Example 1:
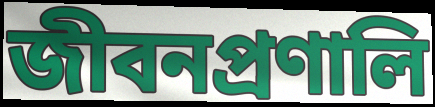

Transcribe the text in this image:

জীবনপ্রণালি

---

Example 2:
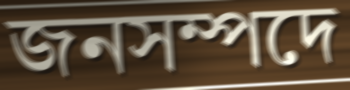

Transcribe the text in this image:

জনসম্পদে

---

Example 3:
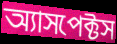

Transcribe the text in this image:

অ্যাসপেক্টস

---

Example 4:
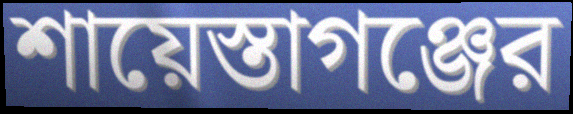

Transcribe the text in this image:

শায়েস্তাগঞ্জের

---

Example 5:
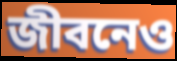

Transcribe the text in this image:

জীবনেও